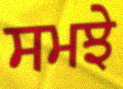
ਸਮਝੇ